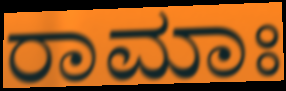
ರಾಮಾಃ